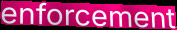
enforcement